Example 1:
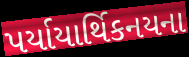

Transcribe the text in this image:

પર્યાયાર્થિકનયના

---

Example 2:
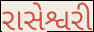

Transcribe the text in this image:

રાસેશ્વરી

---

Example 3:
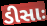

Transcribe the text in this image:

ડીસાઃ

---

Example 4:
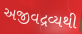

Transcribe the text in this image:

અજીવદ્રવ્યથી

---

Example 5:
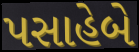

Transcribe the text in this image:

પસાહેબે